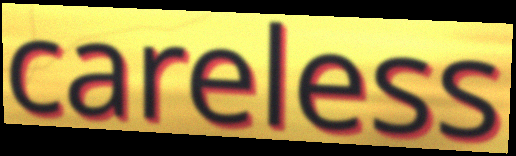
careless